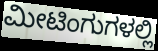
ಮೀಟಿಂಗುಗಳಲ್ಲಿ